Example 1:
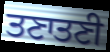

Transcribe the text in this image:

ਤਣਾਤਣੀ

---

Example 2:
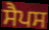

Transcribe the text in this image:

ਸੈਪਸ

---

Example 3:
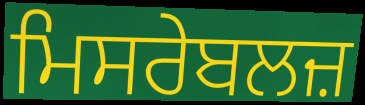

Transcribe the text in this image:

ਮਿਸਰੇਬਲਜ਼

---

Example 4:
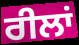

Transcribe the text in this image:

ਰੀਲਾਂ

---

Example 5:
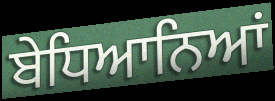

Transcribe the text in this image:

ਬੇਧਿਆਨਿਆਂ